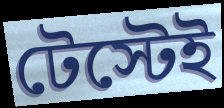
টেস্টেই